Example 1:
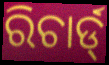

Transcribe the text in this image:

ରିଚାର୍ଡ୍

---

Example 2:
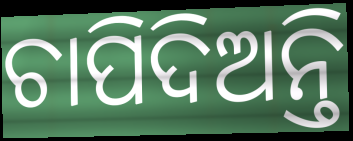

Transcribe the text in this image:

ଚାପିଦିଅନ୍ତି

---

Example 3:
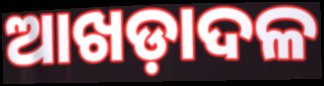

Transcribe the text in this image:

ଆଖଡ଼ାଦଳ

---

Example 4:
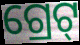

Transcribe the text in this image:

ଗ୍ରେଟ୍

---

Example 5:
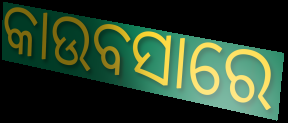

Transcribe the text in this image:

କାଉବସାରେ